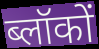
ब्लॉकों